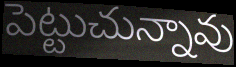
పెట్టుచున్నావు